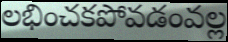
లభించకపోవడంవల్ల